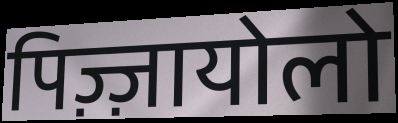
पिज़्ज़ायोलो